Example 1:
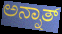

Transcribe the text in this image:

ಅನ್ನಾತ್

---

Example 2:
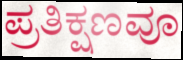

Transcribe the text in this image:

ಪ್ರತಿಕ್ಷಣವೂ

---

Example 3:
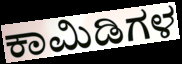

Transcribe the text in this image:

ಕಾಮಿಡಿಗಳ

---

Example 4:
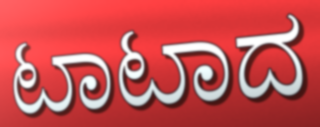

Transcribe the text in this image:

ಟಾಟಾದ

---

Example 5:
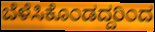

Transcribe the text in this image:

ಬೆಳೆಸಿಕೊಂಡದ್ದರಿಂದ